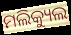
ମଲିକ୍ୟୁଲ